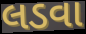
લડવા